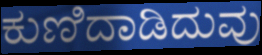
ಕುಣಿದಾಡಿದುವು